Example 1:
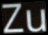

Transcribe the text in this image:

Zu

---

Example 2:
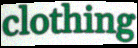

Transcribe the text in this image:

clothing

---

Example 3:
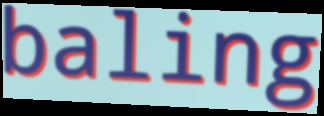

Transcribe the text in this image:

baling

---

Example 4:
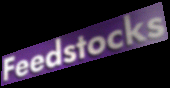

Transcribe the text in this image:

Feedstocks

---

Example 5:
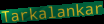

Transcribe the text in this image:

Tarkalankar